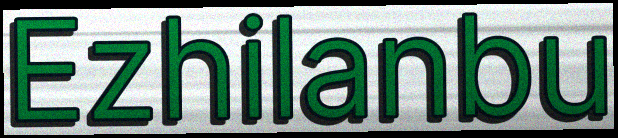
Ezhilanbu